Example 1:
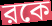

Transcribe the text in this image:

রকে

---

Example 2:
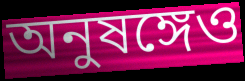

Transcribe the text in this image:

অনুষঙ্গেও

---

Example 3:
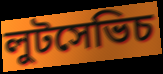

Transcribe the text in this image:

লুটসেভিচ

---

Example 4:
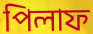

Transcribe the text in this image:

পিলাফ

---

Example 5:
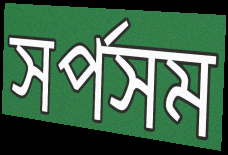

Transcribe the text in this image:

সর্পসম